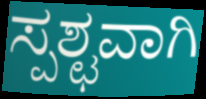
ಸ್ಪಶ್ಟವಾಗಿ